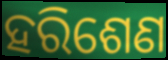
ହରିଶେଣ